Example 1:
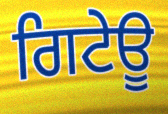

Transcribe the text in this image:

ਗਿਟੇਊ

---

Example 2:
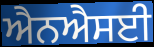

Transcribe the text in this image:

ਐਨਐਸਈ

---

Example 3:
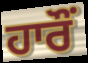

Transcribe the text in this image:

ਹਾਰੌਂ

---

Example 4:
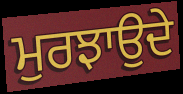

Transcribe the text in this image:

ਮੁਰਝਾਉਦੇ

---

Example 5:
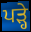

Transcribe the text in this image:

ਪਡ਼੍ਹੇ